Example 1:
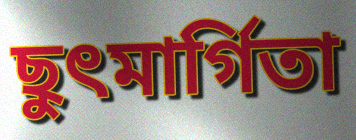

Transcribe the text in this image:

ছুৎমার্গিতা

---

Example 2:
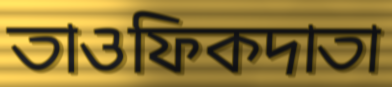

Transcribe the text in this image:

তাওফিকদাতা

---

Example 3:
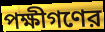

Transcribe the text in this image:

পক্ষীগণের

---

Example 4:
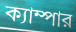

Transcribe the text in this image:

ক্যাম্পার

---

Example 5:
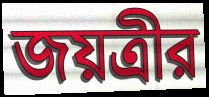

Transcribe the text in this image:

জয়ত্রীর